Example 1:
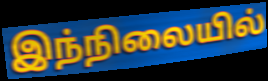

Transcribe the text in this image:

இந்நிலையில்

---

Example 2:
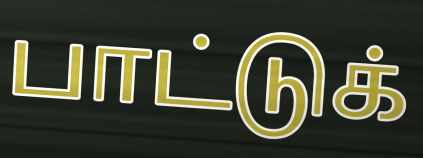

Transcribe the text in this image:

பாட்டுக்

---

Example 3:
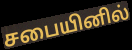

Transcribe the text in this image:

சபையினில்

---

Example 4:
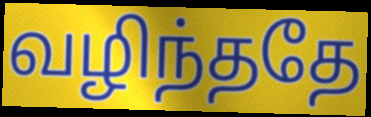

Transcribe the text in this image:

வழிந்ததே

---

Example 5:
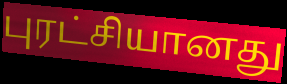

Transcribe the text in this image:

புரட்சியானது